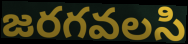
జరగవలసి